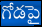
గోడపై